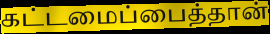
கட்டமைப்பைத்தான்